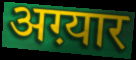
अग़्यार